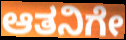
ಆತನಿಗೇ